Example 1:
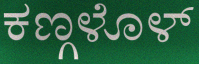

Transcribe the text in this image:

ಕಣ್ಗಳೊಳ್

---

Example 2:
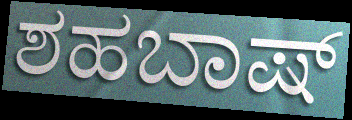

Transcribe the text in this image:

ಶಹಬಾಷ್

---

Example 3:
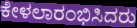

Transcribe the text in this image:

ಕೇಳಲಾರಂಭಿಸಿದರು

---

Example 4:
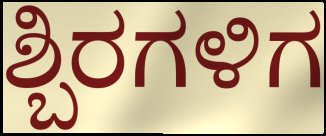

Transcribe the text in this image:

ಶ್ಬಿರಗಳಿಗ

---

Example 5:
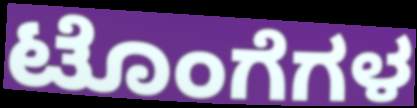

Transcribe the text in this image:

ಟೊಂಗೆಗಳ